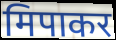
मिपाकर